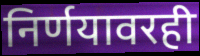
निर्णयावरही